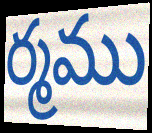
ర్మము